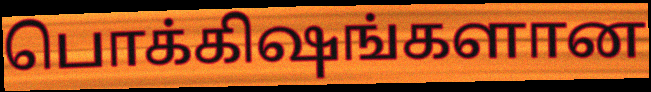
பொக்கிஷங்களான